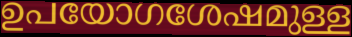
ഉപയോഗശേഷമുള്ള